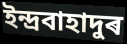
ইন্দ্ৰবাহাদুৰ